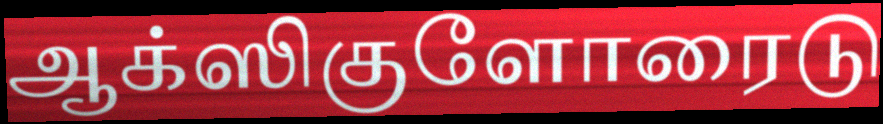
ஆக்ஸிகுளோரைடு